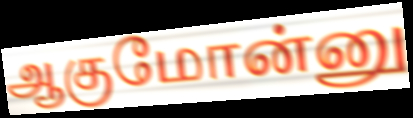
ஆகுமோன்னு